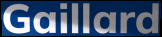
Gaillard